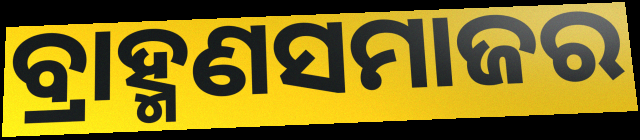
ବ୍ରାହ୍ମଣସମାଜର